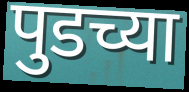
पुडच्या